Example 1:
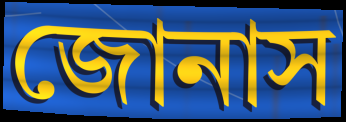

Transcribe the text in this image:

জোনাস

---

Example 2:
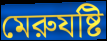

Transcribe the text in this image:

মেরুযষ্টি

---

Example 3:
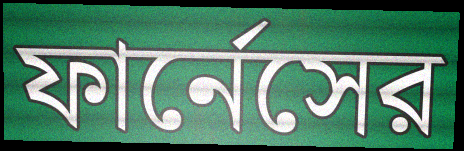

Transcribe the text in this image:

ফার্নেসের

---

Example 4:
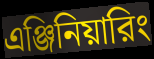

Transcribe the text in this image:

এঞ্জিনিয়ারিং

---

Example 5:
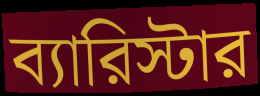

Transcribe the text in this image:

ব্যারিস্টার